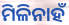
ମିଳିନାହଁ